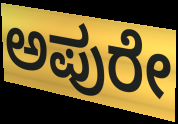
ಅಪುರೇ